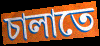
চালাতে